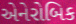
એનેરોબિક